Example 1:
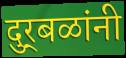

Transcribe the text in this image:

दुर्बळांनी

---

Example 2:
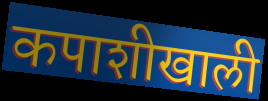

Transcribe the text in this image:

कपाशीखाली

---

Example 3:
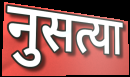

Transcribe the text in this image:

नुसत्या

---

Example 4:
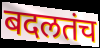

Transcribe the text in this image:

बदलतंच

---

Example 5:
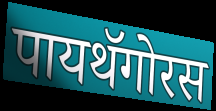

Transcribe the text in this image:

पायथॅगोरस